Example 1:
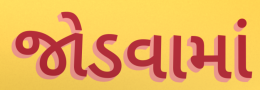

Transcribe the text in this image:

જોડવામાં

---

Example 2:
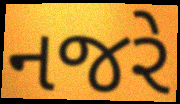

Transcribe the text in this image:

નજરે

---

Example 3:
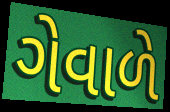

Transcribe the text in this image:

ગેવાળે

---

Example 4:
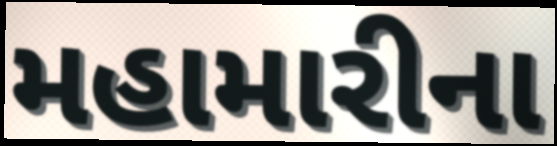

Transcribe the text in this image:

મહામારીના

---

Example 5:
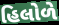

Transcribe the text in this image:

હિલોળે